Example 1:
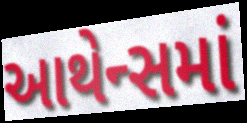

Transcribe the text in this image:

આથેન્સમાં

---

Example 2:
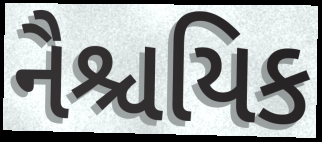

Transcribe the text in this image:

નૈશ્ચયિક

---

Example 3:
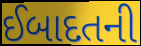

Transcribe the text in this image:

ઈબાદતની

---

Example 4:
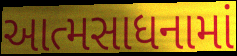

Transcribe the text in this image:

આત્મસાધનામાં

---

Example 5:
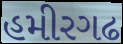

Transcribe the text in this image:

હમીરગઢ